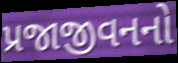
પ્રજાજીવનનો